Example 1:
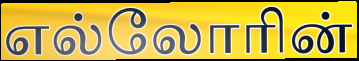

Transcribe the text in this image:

எல்லோரின்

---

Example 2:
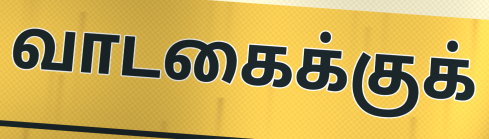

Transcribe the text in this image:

வாடகைக்குக்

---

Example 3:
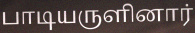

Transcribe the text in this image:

பாடியருளினார்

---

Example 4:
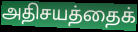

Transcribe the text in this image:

அதிசயத்தைக்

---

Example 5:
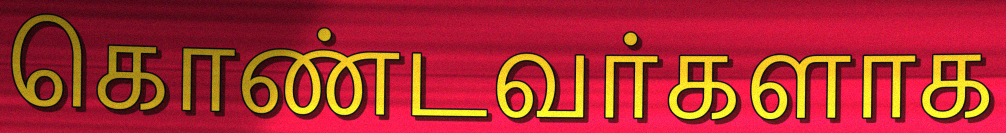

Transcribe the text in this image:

கொண்டவர்களாக